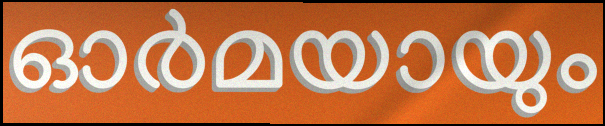
ഓർമയായും